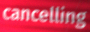
cancelling